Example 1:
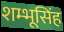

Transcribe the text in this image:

शम्भूसिंह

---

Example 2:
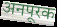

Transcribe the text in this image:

अनपूरक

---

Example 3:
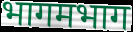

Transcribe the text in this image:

भागमभाग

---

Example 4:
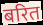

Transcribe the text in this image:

बरित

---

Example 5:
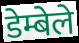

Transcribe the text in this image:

डेम्बेले